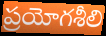
ప్రయోగశీలి